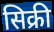
सिक्री